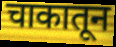
चाकातून